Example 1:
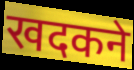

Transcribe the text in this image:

खदकने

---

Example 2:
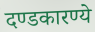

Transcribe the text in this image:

दण्डकारण्ये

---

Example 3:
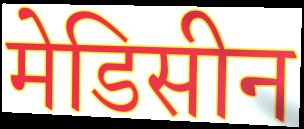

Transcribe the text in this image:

मेडिसीन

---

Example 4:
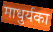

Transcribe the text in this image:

माधुर्यका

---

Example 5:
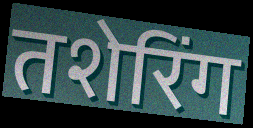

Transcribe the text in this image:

तशेरिंग